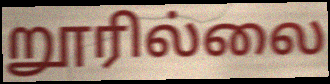
றூரில்லை